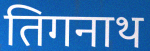
तिगनाथ